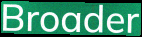
Broader